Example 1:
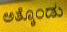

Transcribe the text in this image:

ಅತ್ಕೊಂಡು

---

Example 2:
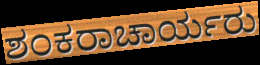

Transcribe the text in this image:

ಶಂಕರಾಚಾರ್ಯರು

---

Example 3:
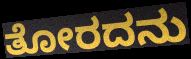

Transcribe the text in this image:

ತೋರದನು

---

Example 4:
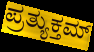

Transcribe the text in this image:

ಪ್ರತ್ಯುಕ್ತಮ್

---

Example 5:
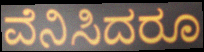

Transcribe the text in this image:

ವೆನಿಸಿದರೂ